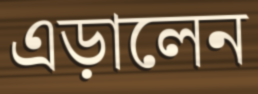
এড়ালেন